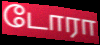
டோரா